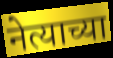
नेत्याच्या